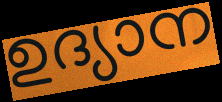
ഉദ്യാന